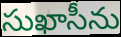
సుఖాసీను